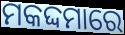
ମକଦ୍ଦମାରେ